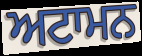
ਅਟਾਮਨ